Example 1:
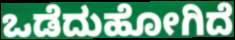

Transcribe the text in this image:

ಒಡೆದುಹೋಗಿದೆ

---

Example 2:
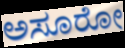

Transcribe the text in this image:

ಅಸೂರೋ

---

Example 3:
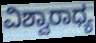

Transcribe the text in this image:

ವಿಶ್ವಾರಾಧ್ಯ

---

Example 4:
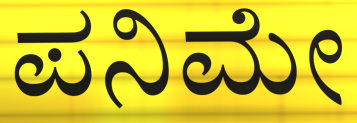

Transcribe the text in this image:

ಪನಿಮೇ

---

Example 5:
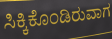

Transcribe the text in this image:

ಸಿಕ್ಕಿಕೊಂಡಿರುವಾಗ